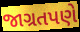
જાગ્રતપણે